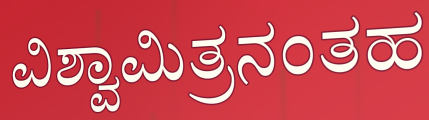
ವಿಶ್ವಾಮಿತ್ರನಂತಹ